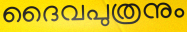
ദൈവപുത്രനും